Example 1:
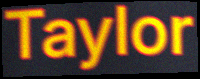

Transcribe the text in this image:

Taylor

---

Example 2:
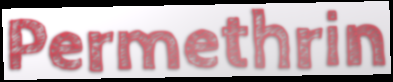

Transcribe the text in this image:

Permethrin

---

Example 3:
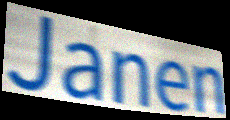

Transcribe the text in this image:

Janen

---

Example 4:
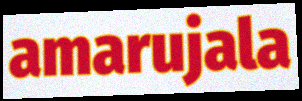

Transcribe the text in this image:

amarujala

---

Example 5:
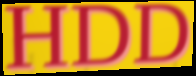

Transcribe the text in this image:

HDD